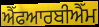
ਐੱਫਆਰਬੀਐੱਮ